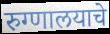
रुग्णालयाचे